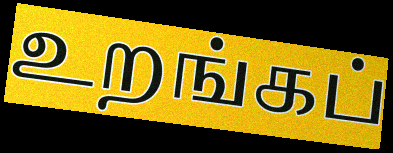
உறங்கப்